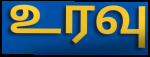
உரவு